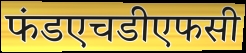
फंडएचडीएफसी